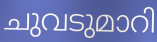
ചുവടുമാറി